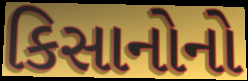
કિસાનોનો